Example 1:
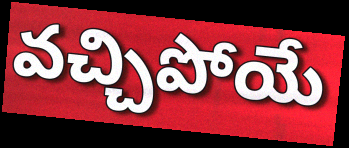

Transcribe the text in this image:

వచ్చిపోయే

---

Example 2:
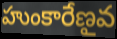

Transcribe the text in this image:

హుంకారేణౖవ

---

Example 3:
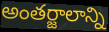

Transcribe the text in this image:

అంతర్జాలాన్ని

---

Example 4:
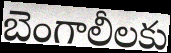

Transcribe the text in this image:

బెంగాలీలకు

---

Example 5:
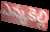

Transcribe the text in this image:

ఎన్కకెల్లి